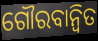
ଗୌରବାନ୍ୱିତ